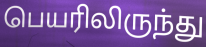
பெயரிலிருந்து